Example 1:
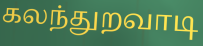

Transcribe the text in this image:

கலந்துறவாடி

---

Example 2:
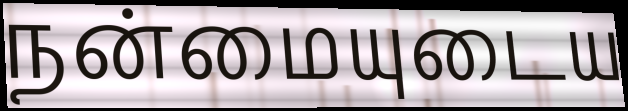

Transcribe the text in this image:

நன்மையுடைய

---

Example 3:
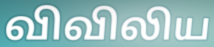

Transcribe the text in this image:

விவிலிய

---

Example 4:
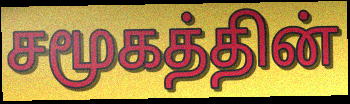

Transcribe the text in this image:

சமூகத்தின்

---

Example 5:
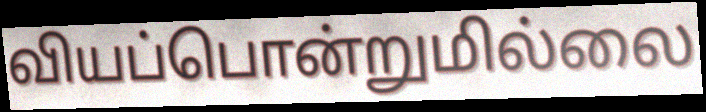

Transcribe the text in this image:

வியப்பொன்றுமில்லை